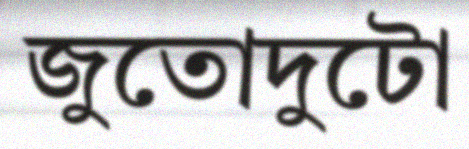
জুতোদুটো